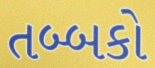
તબ્બકો